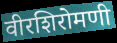
वीरशिरोमणी